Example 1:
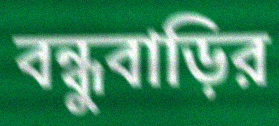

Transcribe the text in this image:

বন্ধুবাড়ির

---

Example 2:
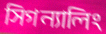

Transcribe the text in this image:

সিগন্যালিং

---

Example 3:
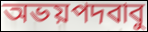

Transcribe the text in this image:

অভয়পদবাবু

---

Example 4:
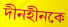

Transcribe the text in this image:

দীনহীনকে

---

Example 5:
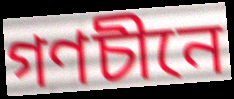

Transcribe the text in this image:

গণচীনে